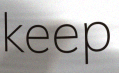
keep